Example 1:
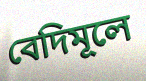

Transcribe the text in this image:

বেদিমূলে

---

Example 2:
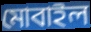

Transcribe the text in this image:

মোবাইল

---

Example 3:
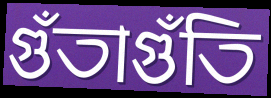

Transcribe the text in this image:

গুঁতাগুঁতি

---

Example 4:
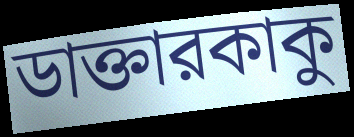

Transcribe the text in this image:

ডাক্তারকাকু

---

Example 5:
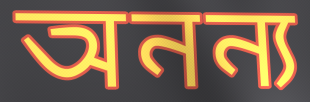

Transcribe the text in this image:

অনন্য